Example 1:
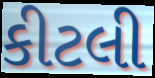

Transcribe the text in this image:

કીટલી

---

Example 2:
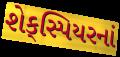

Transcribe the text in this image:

શેક્‌સ્પિયરનાં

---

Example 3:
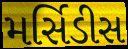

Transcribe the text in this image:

મર્સિડીસ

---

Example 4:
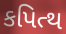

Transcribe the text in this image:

કપિત્થ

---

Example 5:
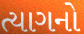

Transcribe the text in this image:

ત્યાગનો